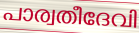
പാര്വതീദേവി